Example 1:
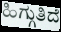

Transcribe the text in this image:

ಹಿಗ್ಗುತಿದೆ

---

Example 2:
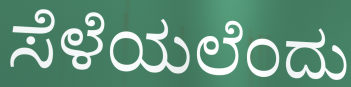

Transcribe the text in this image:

ಸೆಳೆಯಲೆಂದು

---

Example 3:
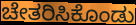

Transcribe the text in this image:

ಚೇತರಿಸಿಕೊಂಡು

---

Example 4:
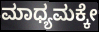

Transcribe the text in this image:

ಮಾಧ್ಯಮಕ್ಕೇ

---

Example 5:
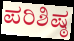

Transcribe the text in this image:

ಪರಿಶಿಷ್ಠ